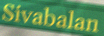
Sivabalan